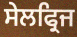
ਸੇਲਫ੍ਰਿਜ